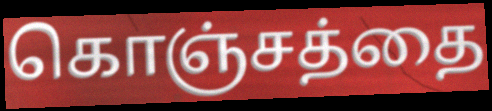
கொஞ்சத்தை